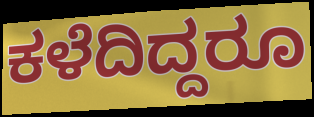
ಕಳೆದಿದ್ದರೂ